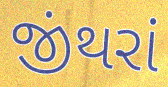
જીંથરાં